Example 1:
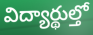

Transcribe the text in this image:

విద్యార్థుల్తో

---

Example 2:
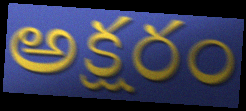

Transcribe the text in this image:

అక్షరం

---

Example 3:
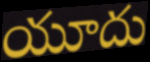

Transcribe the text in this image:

యూదు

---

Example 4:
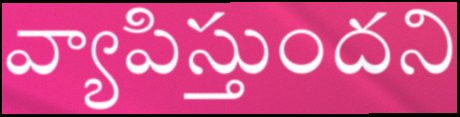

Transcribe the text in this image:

వ్యాపిస్తుందని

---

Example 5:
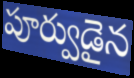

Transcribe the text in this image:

పూర్వుడైన